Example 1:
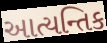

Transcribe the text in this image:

આત્યન્તિક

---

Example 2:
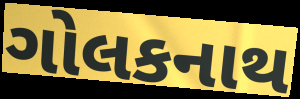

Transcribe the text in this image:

ગોલકનાથ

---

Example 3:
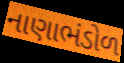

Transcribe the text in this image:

નાણાભંડોળ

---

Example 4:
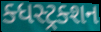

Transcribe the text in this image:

ક્ધસ્ટ્રક્શન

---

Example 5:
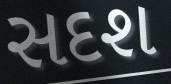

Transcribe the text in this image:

સદશ